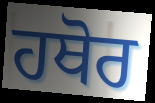
ਹਥੋਰ